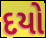
દયો